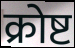
क्रोष्ट